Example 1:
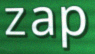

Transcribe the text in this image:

zap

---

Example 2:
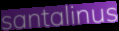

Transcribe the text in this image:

santalinus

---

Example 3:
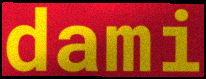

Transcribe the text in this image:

dami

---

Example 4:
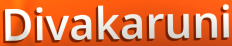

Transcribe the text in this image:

Divakaruni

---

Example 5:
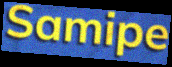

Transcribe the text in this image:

Samipe